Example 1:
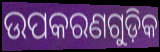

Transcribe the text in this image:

ଉପକରଣଗୁଡ଼ିକ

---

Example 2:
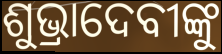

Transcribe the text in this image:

ଶୁଭ୍ରାଦେବୀଙ୍କୁ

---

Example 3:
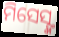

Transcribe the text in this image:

ମିସେସ୍ଙ୍କ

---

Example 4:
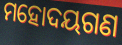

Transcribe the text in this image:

ମହୋଦୟଗଣ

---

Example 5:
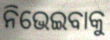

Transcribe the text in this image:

ନିଭେଇବାକୁ